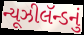
ન્યૂઝીલૅન્ડનું